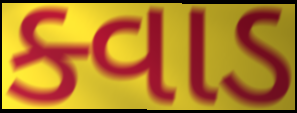
ક્વાડ